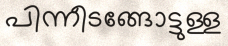
പിന്നീടങ്ങോട്ടുള്ള